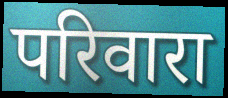
परिवारा